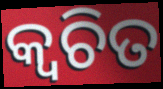
କ୍ୱଚିତ